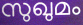
സുഖുമം